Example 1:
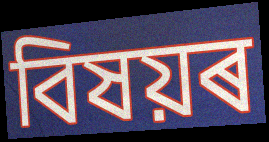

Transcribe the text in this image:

বিষয়ৰ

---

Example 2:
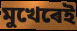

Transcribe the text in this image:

মুখেৰেই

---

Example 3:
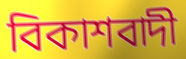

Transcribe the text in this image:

বিকাশবাদী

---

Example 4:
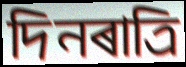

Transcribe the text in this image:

দিনৰাত্ৰি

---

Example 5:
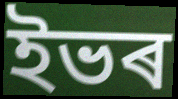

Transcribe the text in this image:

ইভৰ